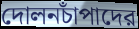
দোলনচাঁপাদের